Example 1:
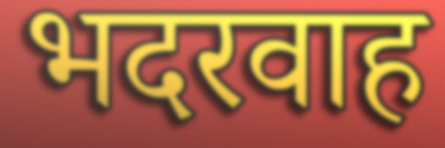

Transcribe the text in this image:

भदरवाह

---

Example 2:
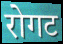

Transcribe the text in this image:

रोगट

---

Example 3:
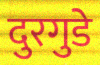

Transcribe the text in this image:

दुरगुडे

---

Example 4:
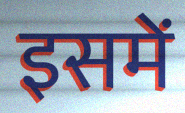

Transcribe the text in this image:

इसमें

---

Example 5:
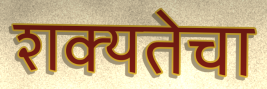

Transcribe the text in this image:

शक्‍यतेचा